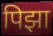
पिझा